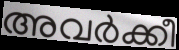
അവർക്കീ